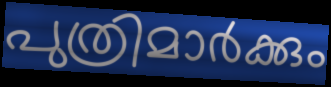
പുത്രിമാർക്കും